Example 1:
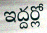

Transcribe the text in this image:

ఇద్దర్లో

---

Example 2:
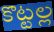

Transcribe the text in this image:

కొట్టల్ల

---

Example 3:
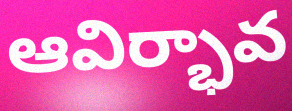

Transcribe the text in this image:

ఆవిర్భావ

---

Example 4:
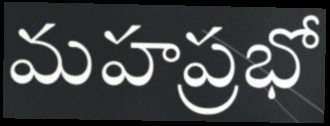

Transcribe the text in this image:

మహప్రభో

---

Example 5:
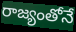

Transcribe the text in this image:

రాజ్యంతోనే